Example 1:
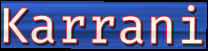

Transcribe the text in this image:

Karrani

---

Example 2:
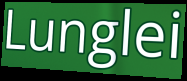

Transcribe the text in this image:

Lunglei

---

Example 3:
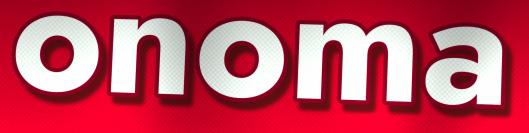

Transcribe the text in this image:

onoma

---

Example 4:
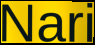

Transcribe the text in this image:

Nari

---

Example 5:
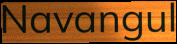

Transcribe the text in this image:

Navangul